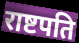
राष्टपति